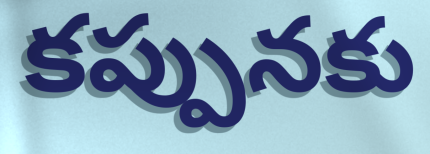
కప్పునకు